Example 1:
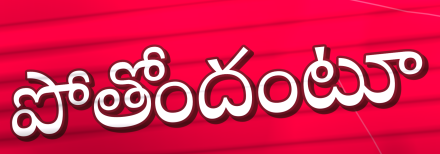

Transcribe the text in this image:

పోతోందంటూ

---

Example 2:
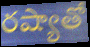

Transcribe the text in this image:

రష్యాతో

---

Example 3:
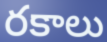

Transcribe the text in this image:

రకాలు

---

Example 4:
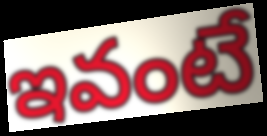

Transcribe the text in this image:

ఇవంటే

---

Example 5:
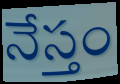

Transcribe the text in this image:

నేస్తం